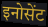
इनोसेंट